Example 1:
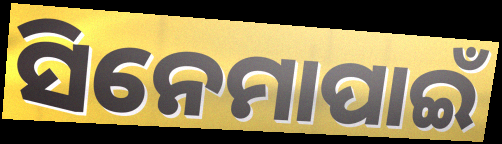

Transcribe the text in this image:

ସିନେମାପାଇଁ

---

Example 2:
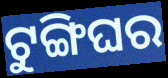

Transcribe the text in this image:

ଟୁଙ୍ଗିଘର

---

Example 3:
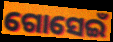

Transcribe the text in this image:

ଗୋସେଇଁ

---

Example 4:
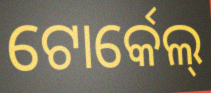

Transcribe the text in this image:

ଟୋର୍କେଲ୍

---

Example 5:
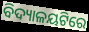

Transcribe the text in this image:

ବିଦ୍ୟାଳୟଟିରେ